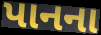
પાનના